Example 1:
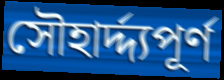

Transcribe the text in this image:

সৌহার্দ্দ্যপূর্ণ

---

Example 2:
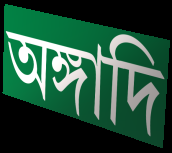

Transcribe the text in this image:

অঙ্গাদি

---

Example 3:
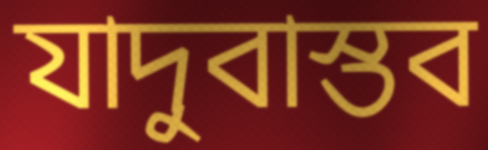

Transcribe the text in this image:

যাদুবাস্তব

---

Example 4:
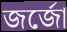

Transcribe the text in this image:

জর্জো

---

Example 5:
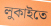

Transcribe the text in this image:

লুকাইতে